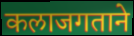
कलाजगताने